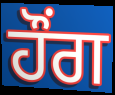
ਹੌਂਗ